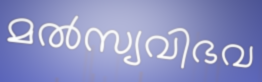
മൽസ്യവിഭവ